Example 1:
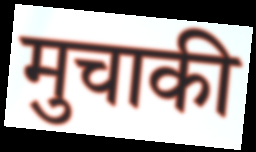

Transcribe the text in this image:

मुचाकी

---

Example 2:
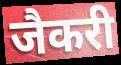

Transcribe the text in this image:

जैकरी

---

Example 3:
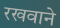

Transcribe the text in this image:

रखवाने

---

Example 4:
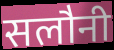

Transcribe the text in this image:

सलौनी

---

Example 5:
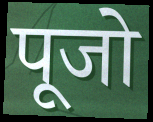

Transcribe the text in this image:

पूजो